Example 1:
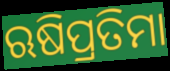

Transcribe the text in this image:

ଋଷିପ୍ରତିମା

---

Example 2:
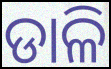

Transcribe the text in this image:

ଡାଳି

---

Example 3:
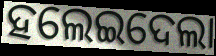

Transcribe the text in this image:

ହଲେଇଦେଲା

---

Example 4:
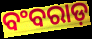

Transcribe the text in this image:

ବଂବରାଡ଼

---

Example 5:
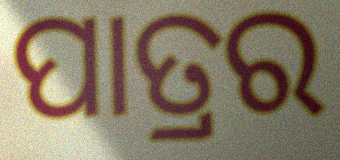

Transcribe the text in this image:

ପାତ୍ରର